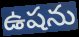
ఉషను